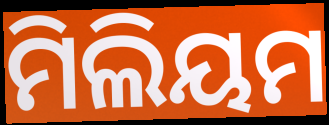
ମିଲିୟମ